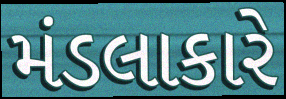
મંડલાકારે